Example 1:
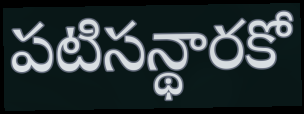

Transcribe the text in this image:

పటిసన్థారకో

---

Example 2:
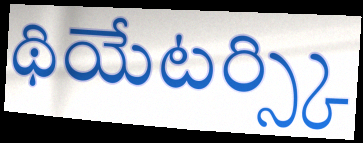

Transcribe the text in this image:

థియేటర్స్కి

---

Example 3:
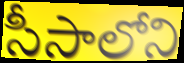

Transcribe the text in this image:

సీసాలోని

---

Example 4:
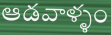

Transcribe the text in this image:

ఆడవాళ్ళం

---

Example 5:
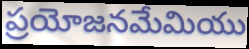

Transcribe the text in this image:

ప్రయోజనమేమియు